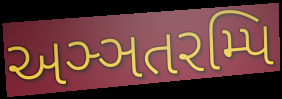
અઞ્ઞતરમ્પિ